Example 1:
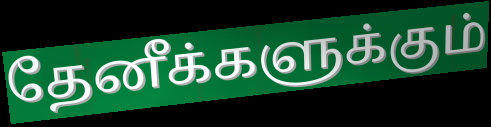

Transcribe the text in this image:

தேனீக்களுக்கும்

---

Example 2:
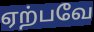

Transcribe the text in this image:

ஏற்பவே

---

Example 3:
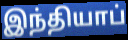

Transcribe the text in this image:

இந்தியாப்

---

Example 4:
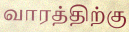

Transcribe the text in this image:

வாரத்திற்கு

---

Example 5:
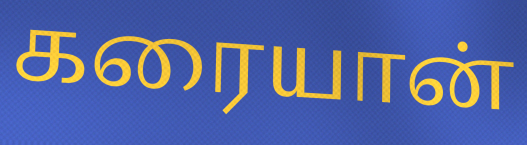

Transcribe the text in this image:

கரையான்